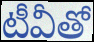
టీవీతో